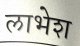
लाभेश